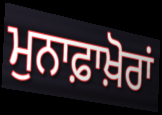
ਮੁਨਾਫ਼ਾਖ਼ੋਰਾਂ